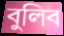
বুলিব